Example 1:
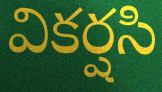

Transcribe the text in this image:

వికర్షసి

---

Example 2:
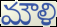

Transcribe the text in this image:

మౌళి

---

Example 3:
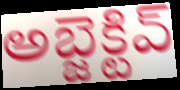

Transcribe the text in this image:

అబ్జెక్టివ్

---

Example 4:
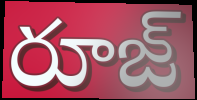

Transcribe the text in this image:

రూజ్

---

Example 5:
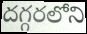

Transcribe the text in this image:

దగ్గరలోని